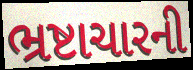
ભ્રષ્ટાચારની